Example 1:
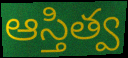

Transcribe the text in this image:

ఆస్తిత్వ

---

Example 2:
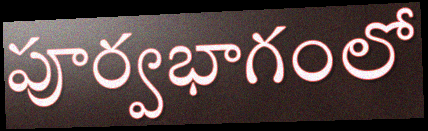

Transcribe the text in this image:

పూర్వభాగంలో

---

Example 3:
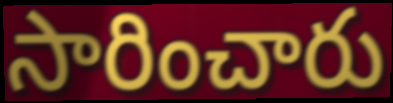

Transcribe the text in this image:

సారించారు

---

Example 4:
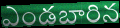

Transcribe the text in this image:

ఎండబారిన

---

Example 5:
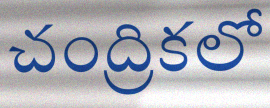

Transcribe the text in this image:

చంద్రికలో